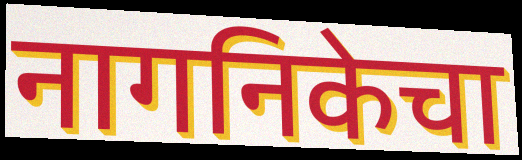
नागनिकेचा